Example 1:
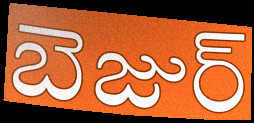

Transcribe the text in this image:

బెజుర్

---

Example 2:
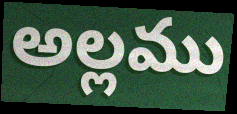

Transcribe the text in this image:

అల్లము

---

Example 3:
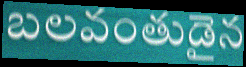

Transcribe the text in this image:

బలవంతుడైన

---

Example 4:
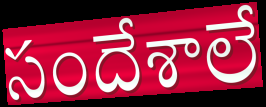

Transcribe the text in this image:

సందేశాలే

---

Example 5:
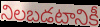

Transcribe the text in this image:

నిలబడటానికీ